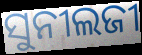
ସୁନୀଲଜୀ